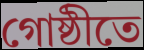
গোষ্ঠীতে